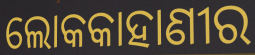
ଲୋକକାହାଣୀର